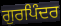
ਗੁਰਪਿੰਦਰ